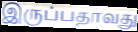
இருப்பதாவது